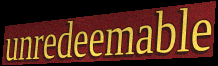
unredeemable